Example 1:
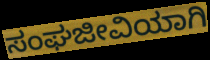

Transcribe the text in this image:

ಸಂಘಜೀವಿಯಾಗಿ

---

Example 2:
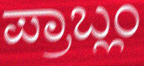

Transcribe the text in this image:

ಪ್ರಾಬ್ಲಂ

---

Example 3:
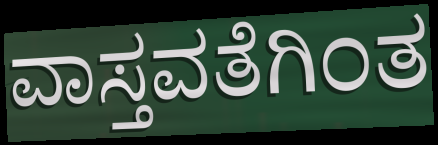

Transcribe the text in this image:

ವಾಸ್ತವತೆಗಿಂತ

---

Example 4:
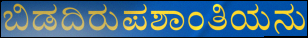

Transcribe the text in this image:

ಬಿಡದಿರುಪಶಾಂತಿಯನು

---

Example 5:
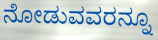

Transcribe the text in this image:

ನೋಡುವವರನ್ನೂ